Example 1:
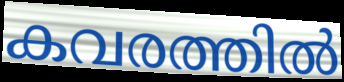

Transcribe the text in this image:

കവരത്തിൽ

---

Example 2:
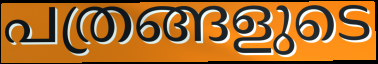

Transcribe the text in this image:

പത്രങ്ങളുടെ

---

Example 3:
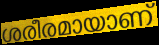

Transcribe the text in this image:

ശരീരമായാണ്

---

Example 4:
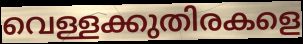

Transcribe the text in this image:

വെള്ളക്കുതിരകളെ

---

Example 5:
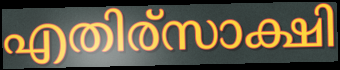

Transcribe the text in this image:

എതിര്സാക്ഷി